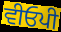
ਵੀਓਪੀ